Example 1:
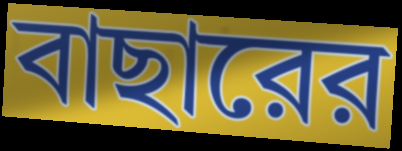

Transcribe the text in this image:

বাছারের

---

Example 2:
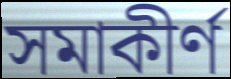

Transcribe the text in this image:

সমাকীর্ণ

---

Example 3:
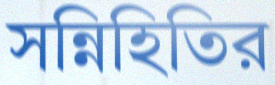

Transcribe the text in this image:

সন্নিহিতির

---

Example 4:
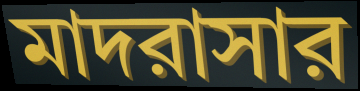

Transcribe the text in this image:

মাদরাসার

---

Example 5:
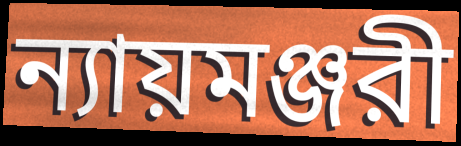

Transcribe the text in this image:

ন্যায়মঞ্জরী